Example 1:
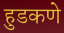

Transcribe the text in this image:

हुडकणे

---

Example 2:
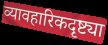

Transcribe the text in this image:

व्यावहारिकदृष्ट्या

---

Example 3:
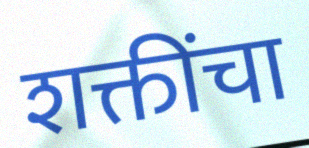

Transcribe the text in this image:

शक्तींचा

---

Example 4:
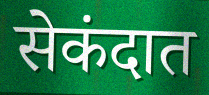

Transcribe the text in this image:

सेकंदात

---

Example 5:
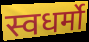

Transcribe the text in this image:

स्वधर्मो